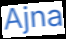
Ajna